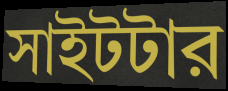
সাইটটার